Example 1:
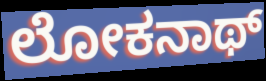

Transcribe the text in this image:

ಲೋಕನಾಥ್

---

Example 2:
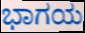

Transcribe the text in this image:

ಭಾಗಯ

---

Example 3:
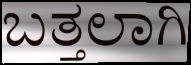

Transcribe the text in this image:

ಬತ್ತಲಾಗಿ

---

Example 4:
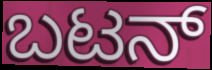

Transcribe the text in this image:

ಬಟನ್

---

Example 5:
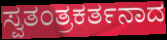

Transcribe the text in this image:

ಸ್ವತಂತ್ರಕರ್ತನಾದ